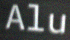
Alu